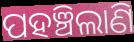
ପହଞ୍ଚିଲାଣି